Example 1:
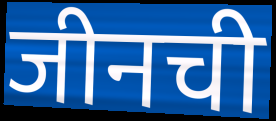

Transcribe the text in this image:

जीनची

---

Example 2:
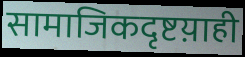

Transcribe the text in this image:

सामाजिकदृष्टय़ाही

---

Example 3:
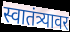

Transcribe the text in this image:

स्वातंत्र्यावर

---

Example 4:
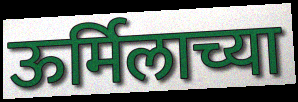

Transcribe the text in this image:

ऊर्मिलाच्या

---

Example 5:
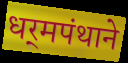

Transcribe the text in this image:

धर्मपंथाने